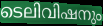
ടെലിവിഷനും